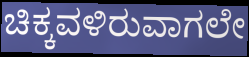
ಚಿಕ್ಕವಳಿರುವಾಗಲೇ